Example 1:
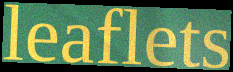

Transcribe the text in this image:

leaflets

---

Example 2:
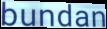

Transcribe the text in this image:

bundan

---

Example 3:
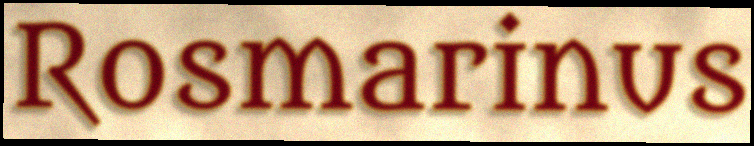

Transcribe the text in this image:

Rosmarinus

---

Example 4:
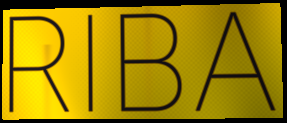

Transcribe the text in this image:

RIBA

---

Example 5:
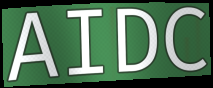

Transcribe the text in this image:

AIDC